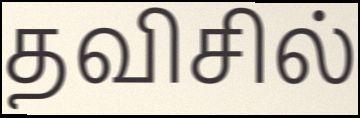
தவிசில்